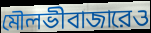
মৌলভীবাজারেও